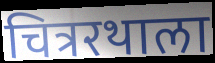
चित्ररथाला